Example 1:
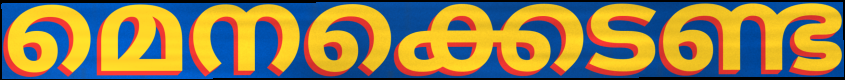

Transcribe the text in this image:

മെനക്കെടണ്ട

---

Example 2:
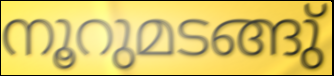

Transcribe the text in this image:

നൂറുമടങ്ങു്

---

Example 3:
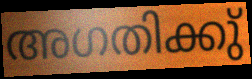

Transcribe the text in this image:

അഗതിക്കു്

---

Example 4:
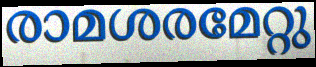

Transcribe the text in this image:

രാമശരമേറ്റു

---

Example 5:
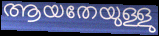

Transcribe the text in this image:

ആയതേയുള്ളു